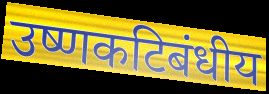
उष्णकटिबंधीय